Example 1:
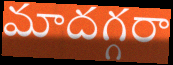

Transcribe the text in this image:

మాదగ్గరా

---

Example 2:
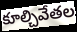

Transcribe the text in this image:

కూల్చివేతల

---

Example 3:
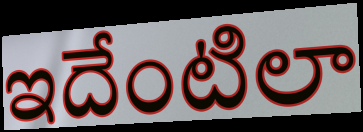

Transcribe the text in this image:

ఇదేంటిలా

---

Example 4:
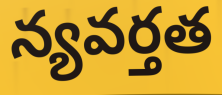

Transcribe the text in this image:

న్యవర్తత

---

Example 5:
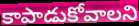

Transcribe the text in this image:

కాపాడుకోవాలని